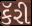
કૅરી